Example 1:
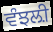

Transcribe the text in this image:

ਵੰਝਲ਼ੀ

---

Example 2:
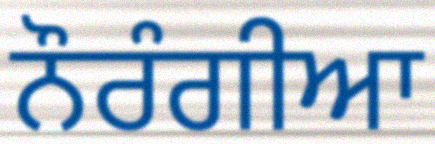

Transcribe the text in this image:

ਨੌਰੰਗੀਆ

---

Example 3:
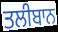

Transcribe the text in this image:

ਤਲੀਬਾਨ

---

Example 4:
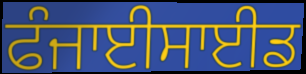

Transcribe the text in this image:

ਫੰਜਾਈਸਾਈਡ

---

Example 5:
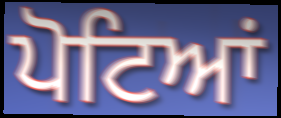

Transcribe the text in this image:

ਪੋਟਿਆਂ